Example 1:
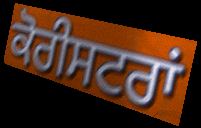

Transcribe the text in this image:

ਕੋਰੀਸਟਰਾਂ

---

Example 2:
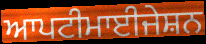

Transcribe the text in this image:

ਆਪਟੀਮਾਈਜੇਸ਼ਨ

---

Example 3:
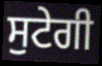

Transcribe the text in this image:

ਸੁਟੇਗੀ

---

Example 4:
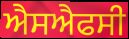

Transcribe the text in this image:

ਐਸਐਫਸੀ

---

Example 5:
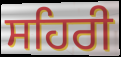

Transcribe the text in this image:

ਸਹਿਰੀ